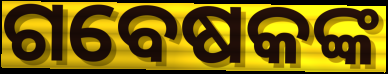
ଗବେଷକଙ୍କ